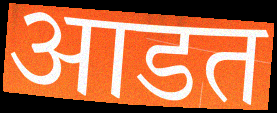
आडत